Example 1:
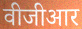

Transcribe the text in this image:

वीजीआर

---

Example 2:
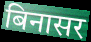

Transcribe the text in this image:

बिनासर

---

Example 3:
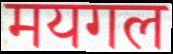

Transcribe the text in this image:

मयगल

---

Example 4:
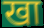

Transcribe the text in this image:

खा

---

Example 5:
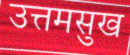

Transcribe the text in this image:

उत्तमसुख